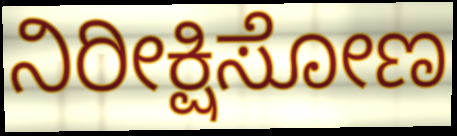
ನಿರೀಕ್ಷಿಸೋಣ